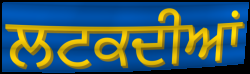
ਲਟਕਦੀਆਂ